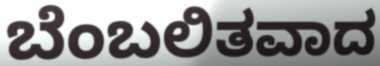
ಬೆಂಬಲಿತವಾದ